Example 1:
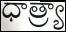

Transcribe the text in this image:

ధాత్ర్యా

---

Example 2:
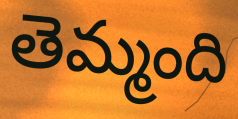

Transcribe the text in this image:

తెమ్మంది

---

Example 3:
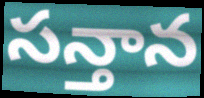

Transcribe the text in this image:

సన్తాన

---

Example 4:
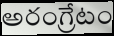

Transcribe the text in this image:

అరంగ్రేటం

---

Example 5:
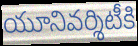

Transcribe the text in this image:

యూనివర్శిటీకి